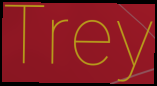
Trey